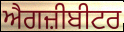
ਐਗਜ਼ੀਬੀਟਰ